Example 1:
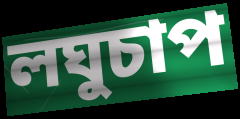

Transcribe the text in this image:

লঘুচাপ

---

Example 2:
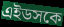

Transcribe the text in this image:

এইডসকে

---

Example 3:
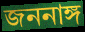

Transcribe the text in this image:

জননাঙ্গ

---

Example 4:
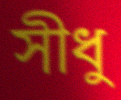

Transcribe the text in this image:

সীধু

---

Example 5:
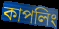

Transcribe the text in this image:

কাপলিং